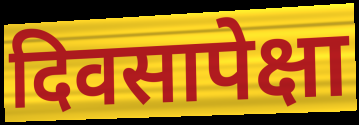
दिवसापेक्षा